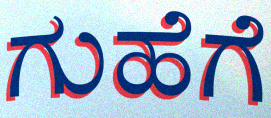
ಗುಹೆಗೆ